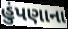
હુંપણાના